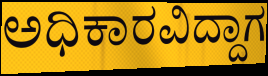
ಅಧಿಕಾರವಿದ್ದಾಗ